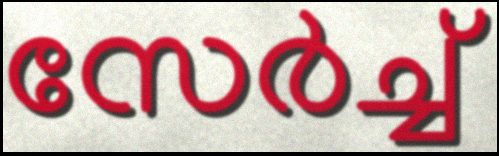
സേർച്ച്